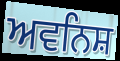
ਅਵਨਿਸ਼